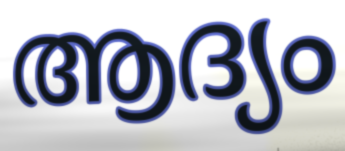
ആദ്യം